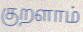
குறளாம்